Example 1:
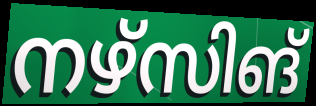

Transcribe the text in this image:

നഴ്സിങ്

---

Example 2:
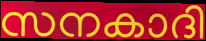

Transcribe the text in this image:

സനകാദി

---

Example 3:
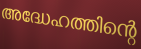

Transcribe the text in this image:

അദ്ധേഹത്തിന്റെ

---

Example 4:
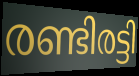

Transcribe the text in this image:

രണ്ടിരട്ടി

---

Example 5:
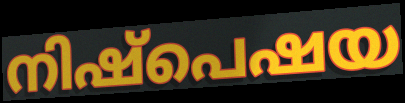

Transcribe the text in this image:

നിഷ്പെഷയ